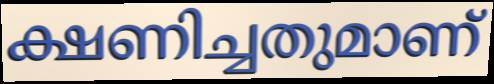
ക്ഷണിച്ചതുമാണ്